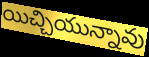
యిచ్చియున్నావు